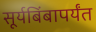
सूर्यबिंबापर्यंत